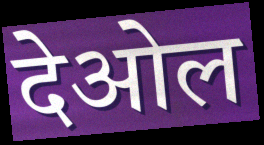
देओल